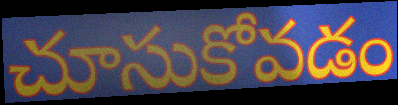
చూసుకోవడం